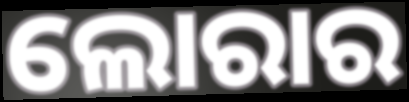
ଲୋରାର